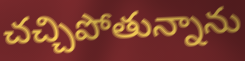
చచ్చిపోతున్నాను